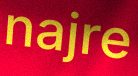
najre